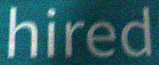
hired